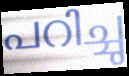
പറിച്ചു